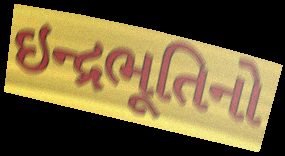
ઇન્દ્રભૂતિનો